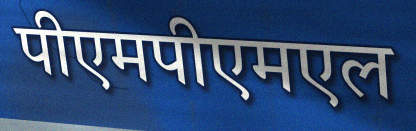
पीएमपीएमएल